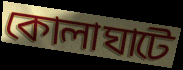
কোলাঘাটে